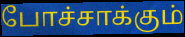
போச்சாக்கும்